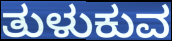
ತುಳುಕುವ